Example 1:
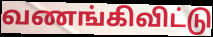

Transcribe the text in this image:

வணங்கிவிட்டு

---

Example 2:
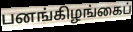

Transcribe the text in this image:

பனங்கிழங்கைப்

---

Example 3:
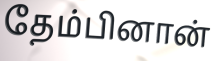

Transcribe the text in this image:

தேம்பினான்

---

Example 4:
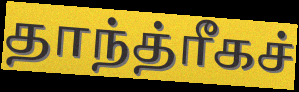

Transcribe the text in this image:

தாந்த்ரீகச்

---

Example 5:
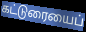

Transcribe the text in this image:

கட்டுரையைப்